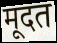
मूदत